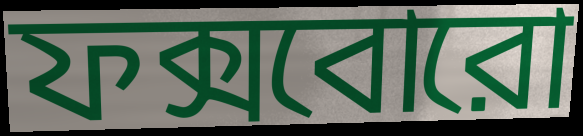
ফক্সবোরো